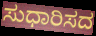
ಸುಧಾರಿಸದ